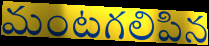
మంటగలిపిన